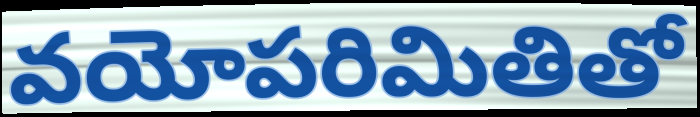
వయోపరిమితితో